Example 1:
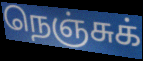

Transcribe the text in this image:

நெஞ்சுக்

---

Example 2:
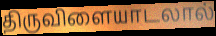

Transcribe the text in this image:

திருவிளையாடலால்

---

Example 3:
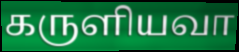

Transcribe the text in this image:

கருளியவா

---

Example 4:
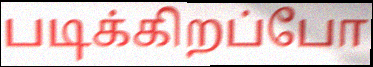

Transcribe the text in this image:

படிக்கிறப்போ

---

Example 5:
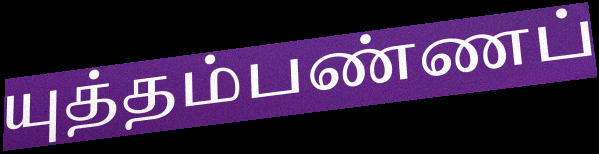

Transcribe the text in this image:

யுத்தம்பண்ணப்